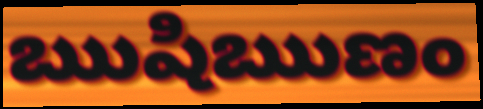
ఋషిఋణం